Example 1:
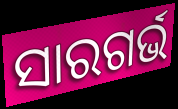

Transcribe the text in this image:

ସାରଗର୍ଭ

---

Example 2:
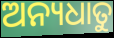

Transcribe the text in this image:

ଅନ୍ୟଧାତୁ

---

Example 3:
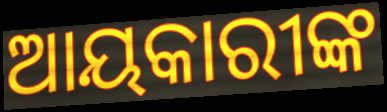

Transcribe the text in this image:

ଆୟକାରୀଙ୍କ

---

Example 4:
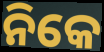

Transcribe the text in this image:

ନିକେ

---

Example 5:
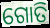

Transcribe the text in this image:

ଗୋତି